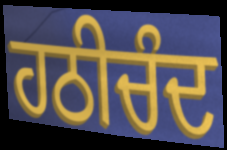
ਹਠੀਚੰਦ